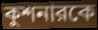
কুশনারকে